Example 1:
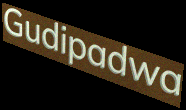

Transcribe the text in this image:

Gudipadwa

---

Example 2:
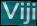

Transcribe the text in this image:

Viji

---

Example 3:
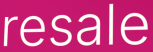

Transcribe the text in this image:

resale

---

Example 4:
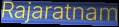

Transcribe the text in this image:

Rajaratnam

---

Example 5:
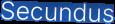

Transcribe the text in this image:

Secundus